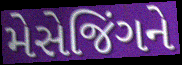
મેસેજિંગને